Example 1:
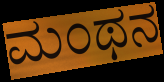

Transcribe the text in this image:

ಮಂಥನ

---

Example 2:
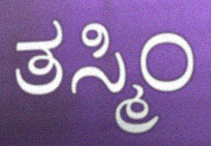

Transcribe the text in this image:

ತಸ್ಮಿಂ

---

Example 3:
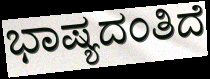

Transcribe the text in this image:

ಭಾಷ್ಯದಂತಿದೆ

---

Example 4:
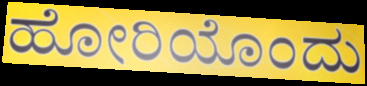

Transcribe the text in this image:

ಹೋರಿಯೊಂದು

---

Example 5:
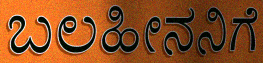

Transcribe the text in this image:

ಬಲಹೀನನಿಗೆ